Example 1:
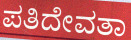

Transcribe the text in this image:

ಪತಿದೇವತಾ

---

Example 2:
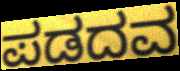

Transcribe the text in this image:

ಪಡದವ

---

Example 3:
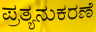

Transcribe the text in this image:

ಪ್ರತ್ಯನುಕರಣೆ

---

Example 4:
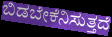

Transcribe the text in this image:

ಬಿಡಬೇಕೆನಿಸುತ್ತದೆ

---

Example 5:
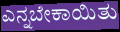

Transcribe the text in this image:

ಎನ್ನಬೇಕಾಯಿತು